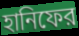
হানিফের